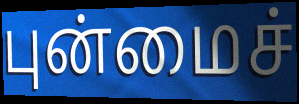
புன்மைச்